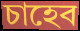
চাহেব